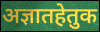
अज्ञातहेतुक